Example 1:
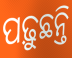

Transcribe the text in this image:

ପଢ଼ୁଛନ୍ତି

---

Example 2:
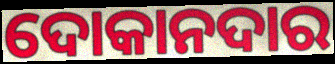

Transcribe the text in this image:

ଦୋକାନଦାର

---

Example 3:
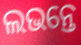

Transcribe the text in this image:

ଲଭନ୍ତେ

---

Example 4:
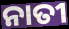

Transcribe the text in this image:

ନାତୀ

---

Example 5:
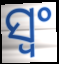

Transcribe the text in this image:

ସ୍ୱଂ